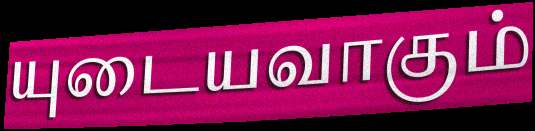
யுடையவாகும்